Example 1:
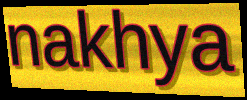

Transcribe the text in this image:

nakhya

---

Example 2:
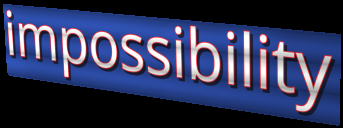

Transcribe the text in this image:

impossibility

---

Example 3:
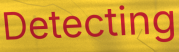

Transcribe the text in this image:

Detecting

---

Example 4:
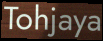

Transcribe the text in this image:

Tohjaya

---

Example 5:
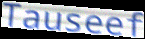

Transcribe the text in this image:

Tauseef